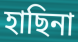
হাছিনা